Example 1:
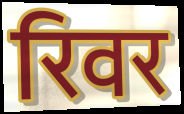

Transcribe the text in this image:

रिवर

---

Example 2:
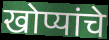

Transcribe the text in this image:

खोप्यांचे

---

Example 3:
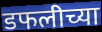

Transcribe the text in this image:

डफलीच्या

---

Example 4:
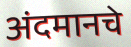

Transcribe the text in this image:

अंदमानचे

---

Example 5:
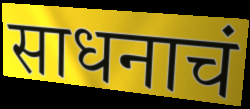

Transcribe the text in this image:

साधनाचं